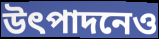
উৎপাদনেও